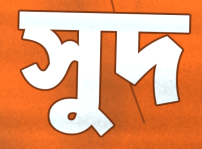
সুদ